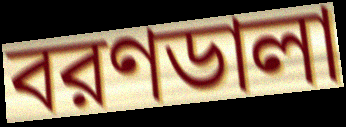
বরণডালা